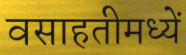
वसाहतीमध्यें